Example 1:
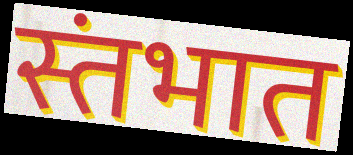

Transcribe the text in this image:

स्तंभात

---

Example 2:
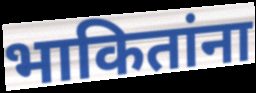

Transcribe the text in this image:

भाकितांना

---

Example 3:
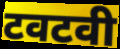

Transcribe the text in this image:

टवटवी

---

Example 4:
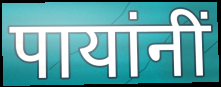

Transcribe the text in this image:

पायांनीं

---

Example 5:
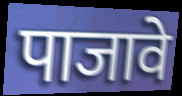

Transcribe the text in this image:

पाजावे